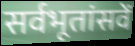
सर्वभूतांसवें